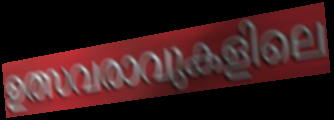
ഉത്സവരാവുകളിലെ